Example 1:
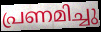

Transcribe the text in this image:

പ്രണമിച്ചു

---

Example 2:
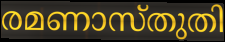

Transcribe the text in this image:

രമണാസ്തുതി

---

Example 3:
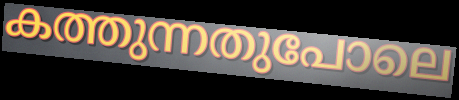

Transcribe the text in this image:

കത്തുന്നതുപോലെ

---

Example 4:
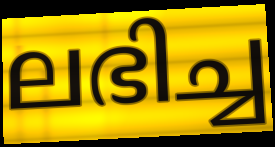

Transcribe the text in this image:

ലഭിച്ച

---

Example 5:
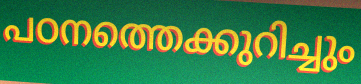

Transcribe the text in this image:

പഠനത്തെക്കുറിച്ചും